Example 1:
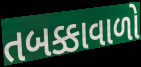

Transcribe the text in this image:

તબક્કાવાળો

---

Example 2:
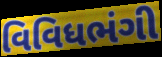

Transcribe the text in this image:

વિવિધભંગી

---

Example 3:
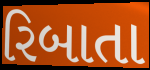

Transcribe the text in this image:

રિબાતા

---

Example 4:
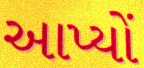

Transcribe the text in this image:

આપ્યોં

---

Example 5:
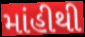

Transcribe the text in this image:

માંહીથી